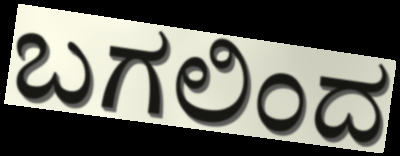
ಬಗಲಿಂದ